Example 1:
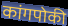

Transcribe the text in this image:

कांगपोकी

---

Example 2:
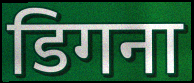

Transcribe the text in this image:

डिगना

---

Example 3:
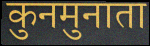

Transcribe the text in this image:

कुनमुनाता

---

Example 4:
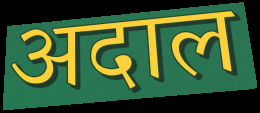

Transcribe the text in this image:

अदाल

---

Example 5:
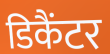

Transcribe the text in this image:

डिकैंटर